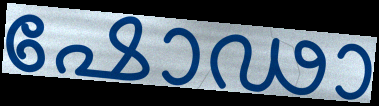
ഷോഢാ